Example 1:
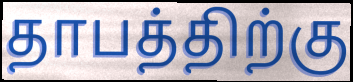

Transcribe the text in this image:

தாபத்திற்கு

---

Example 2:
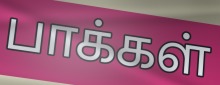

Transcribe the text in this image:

பாக்கள்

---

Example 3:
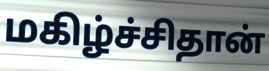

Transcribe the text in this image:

மகிழ்ச்சிதான்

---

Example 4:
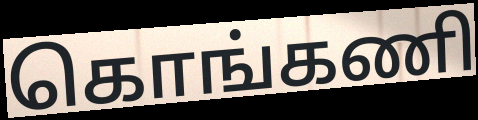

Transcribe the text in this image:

கொங்கணி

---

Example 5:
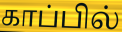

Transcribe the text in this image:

காப்பில்